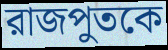
রাজপুতকে